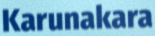
Karunakara